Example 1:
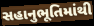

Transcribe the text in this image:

સહાનુભૂતિમાંથી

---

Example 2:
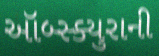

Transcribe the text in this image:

ઑબ્સ્ક્યુરાની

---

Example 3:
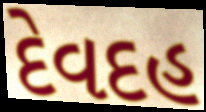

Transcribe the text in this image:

દેવદહ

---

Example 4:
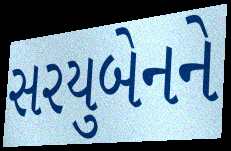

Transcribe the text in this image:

સરયુબેનને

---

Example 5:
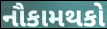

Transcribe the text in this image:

નૌકામથકો